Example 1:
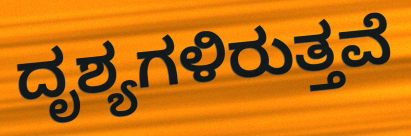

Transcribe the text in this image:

ದೃಶ್ಯಗಳಿರುತ್ತವೆ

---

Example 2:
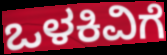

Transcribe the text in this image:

ಒಳಕಿವಿಗೆ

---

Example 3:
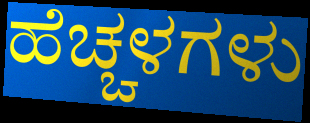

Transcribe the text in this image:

ಹೆಚ್ಚಳಗಳು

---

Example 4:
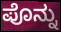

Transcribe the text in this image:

ಪೊನ್ನು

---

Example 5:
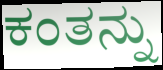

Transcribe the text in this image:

ಕಂತನ್ನು